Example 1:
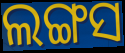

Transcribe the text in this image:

ଲଙ୍ଗସ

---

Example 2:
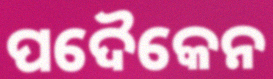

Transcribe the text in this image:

ପଦୈକେନ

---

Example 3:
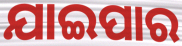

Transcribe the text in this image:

ଯାଇପାର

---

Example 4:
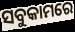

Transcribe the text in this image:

ସବୁକାମରେ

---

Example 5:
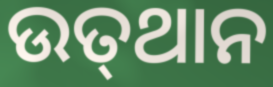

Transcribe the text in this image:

ଉତ୍‍ଥାନ